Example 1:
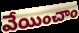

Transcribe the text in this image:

వేయించాం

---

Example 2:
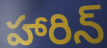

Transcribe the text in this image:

హారిన్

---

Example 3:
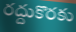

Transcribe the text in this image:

రద్దుకొరకు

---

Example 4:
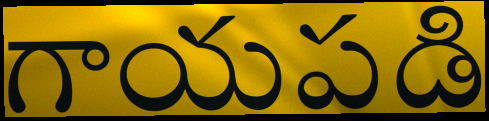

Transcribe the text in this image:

గాయపడి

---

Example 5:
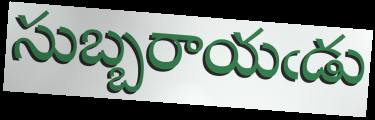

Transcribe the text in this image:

సుబ్బరాయఁడు